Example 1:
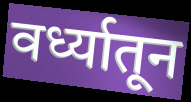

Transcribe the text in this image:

वर्ध्यातून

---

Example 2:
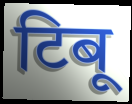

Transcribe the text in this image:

टिबू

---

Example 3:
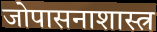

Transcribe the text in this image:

जोपासनाशास्त्र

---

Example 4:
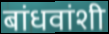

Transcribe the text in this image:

बांधवांशी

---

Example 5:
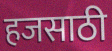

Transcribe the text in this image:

हजसाठी